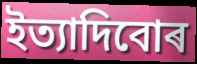
ইত্যাদিবোৰ